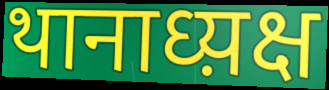
थानाध्य़क्ष